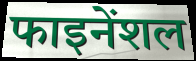
फाइनेंशल